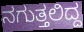
ನಗುತ್ತಲಿದ್ದ